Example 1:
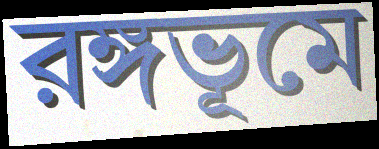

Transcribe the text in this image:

রঙ্গভূমে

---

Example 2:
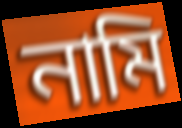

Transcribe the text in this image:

নামি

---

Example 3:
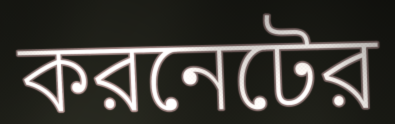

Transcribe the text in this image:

করনেটের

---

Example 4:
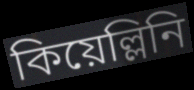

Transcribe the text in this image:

কিয়েল্লিনি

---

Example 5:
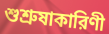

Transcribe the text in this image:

শুশ্রুষাকারিণী